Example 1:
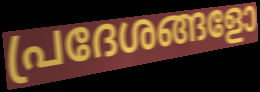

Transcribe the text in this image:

പ്രദേശങ്ങളോ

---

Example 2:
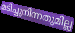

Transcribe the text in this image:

മടിച്ചുനിന്നതുമില്ല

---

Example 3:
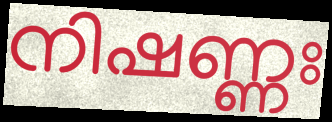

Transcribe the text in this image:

നിഷണ്ണഃ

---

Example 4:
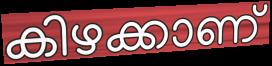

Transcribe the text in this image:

കിഴക്കാണ്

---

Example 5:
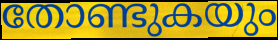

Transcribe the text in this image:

തോണ്ടുകയും